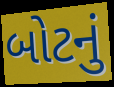
બોટનું